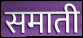
समाती